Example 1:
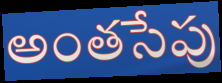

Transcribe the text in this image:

అంతసేపు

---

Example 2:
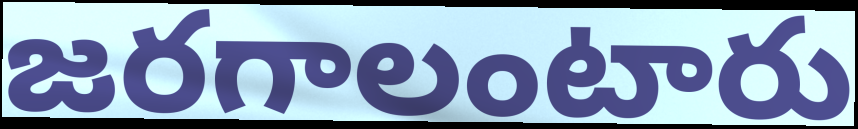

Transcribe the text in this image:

జరగాలంటారు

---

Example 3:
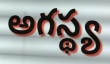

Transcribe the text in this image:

అగస్థ్య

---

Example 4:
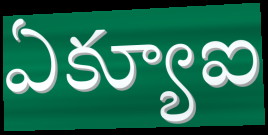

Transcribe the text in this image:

ఏక్యూఐ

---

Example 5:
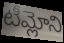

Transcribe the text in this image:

టీమ్లోని